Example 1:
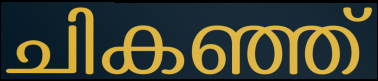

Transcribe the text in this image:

ചികഞ്ഞ്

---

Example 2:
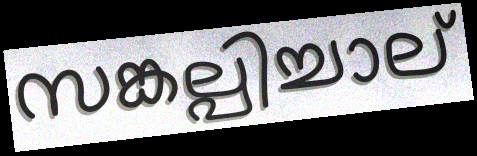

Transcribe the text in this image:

സങ്കല്പിച്ചാല്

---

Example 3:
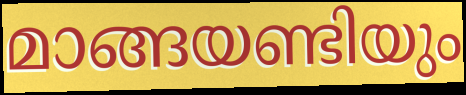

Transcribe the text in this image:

മാങ്ങയണ്ടിയും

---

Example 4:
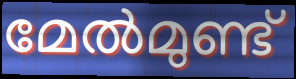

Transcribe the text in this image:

മേൽമുണ്ട്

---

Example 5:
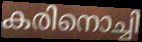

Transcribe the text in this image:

കരിനൊച്ചി